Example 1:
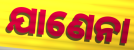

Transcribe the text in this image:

ଯାଣେନା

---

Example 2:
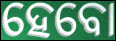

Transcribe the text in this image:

ହେବୋ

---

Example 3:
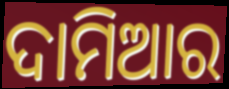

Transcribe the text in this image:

ଦାମିଆର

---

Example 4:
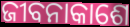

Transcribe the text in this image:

ଜୀବନାକାଶେ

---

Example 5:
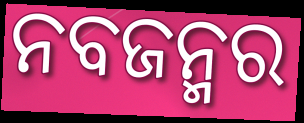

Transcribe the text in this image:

ନବଜନ୍ମର